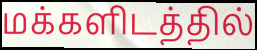
மக்களிடத்தில்